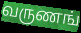
வருணங்